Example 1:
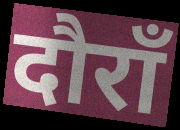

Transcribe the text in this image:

दौराँ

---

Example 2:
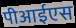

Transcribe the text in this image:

पीआईएस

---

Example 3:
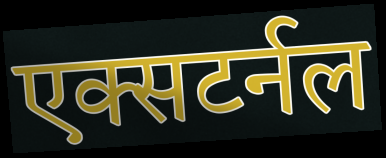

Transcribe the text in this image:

एक्सटर्नल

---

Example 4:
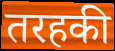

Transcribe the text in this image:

तरहकी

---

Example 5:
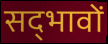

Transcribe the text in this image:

सद्भावों